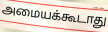
அமையக்கூடாது